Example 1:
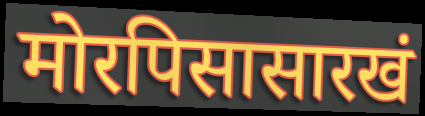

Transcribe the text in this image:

मोरपिसासारखं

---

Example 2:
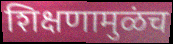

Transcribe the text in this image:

शिक्षणामुळंच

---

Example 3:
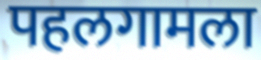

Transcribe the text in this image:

पहलगामला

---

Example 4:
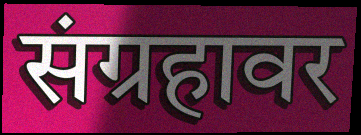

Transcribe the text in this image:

संग्रहावर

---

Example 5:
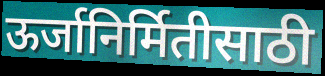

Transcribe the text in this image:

ऊर्जानिर्मितीसाठी